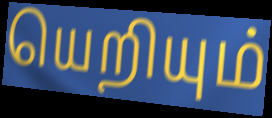
யெறியும்